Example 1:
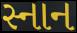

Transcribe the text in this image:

સ્નાન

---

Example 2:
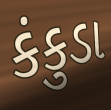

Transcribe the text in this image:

કંકુડા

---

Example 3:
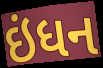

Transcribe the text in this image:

ઇંધન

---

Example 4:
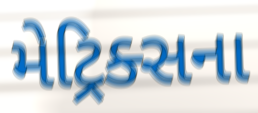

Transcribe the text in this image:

મેટ્રિક્સના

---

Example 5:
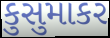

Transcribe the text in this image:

કુસુમાકર